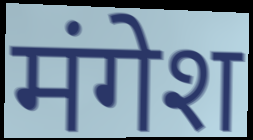
मंगेश